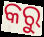
କରୁ